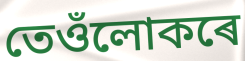
তেওঁলোকৰে